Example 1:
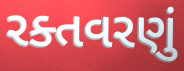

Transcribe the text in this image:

રક્તવરણું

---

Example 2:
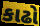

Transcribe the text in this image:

કાઢો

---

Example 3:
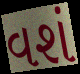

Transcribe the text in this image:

વશં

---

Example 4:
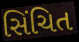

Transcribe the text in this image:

સિંચિત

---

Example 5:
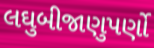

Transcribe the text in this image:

લઘુબીજાણુપર્ણો